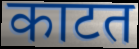
काटत